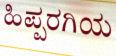
ಹಿಪ್ಪರಗಿಯ